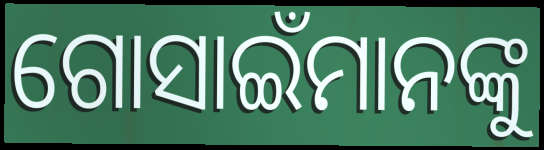
ଗୋସାଇଁମାନଙ୍କୁ